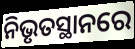
ନିଭୃତସ୍ଥାନରେ